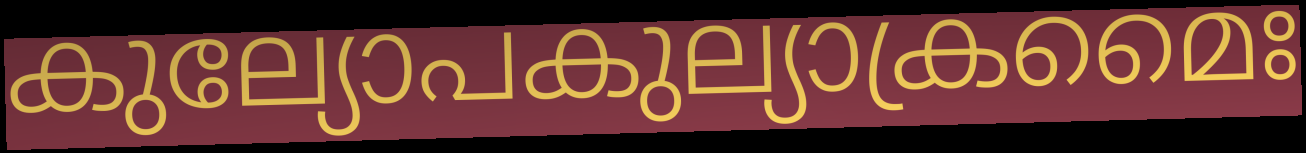
കുല്യോപകുല്യാക്രമൈഃ